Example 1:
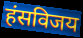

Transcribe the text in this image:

हंसविजय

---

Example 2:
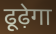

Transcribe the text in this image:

ढूढ़ेगा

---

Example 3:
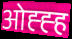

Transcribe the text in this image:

ओह्ह्ह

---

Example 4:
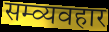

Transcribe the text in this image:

सम्व्यवहार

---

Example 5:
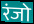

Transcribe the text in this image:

रंजो